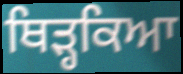
ਥਿੜ੍ਹਕਿਆ